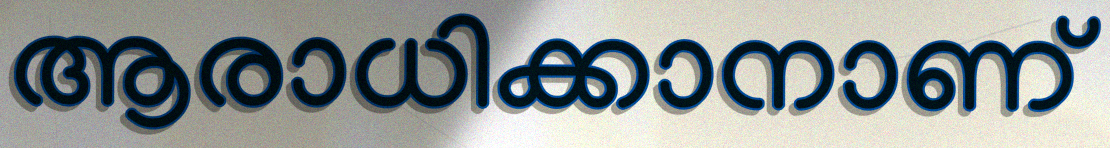
ആരാധിക്കാനാണ്